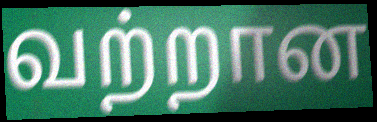
வற்றான